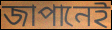
জাপানেই